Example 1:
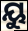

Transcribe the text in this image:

ୟୁ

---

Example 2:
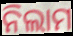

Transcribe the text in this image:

ନିଲାମ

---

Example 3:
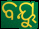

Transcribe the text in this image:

ବୟୁ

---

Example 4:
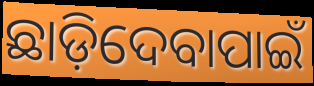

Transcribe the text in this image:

ଛାଡ଼ିଦେବାପାଇଁ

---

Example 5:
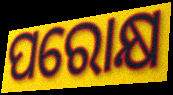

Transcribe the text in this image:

ପରୋକ୍ଷ